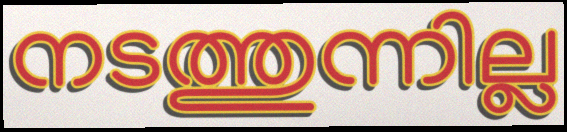
നടത്തുന്നില്ല